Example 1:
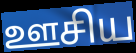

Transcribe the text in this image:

ஊசிய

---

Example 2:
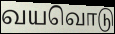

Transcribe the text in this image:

வயவொடு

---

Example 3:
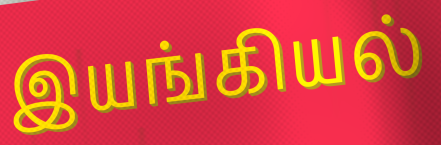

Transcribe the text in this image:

இயங்கியல்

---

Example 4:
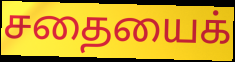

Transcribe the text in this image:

சதையைக்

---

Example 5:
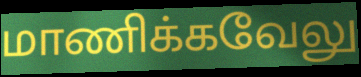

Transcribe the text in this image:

மாணிக்கவேலு